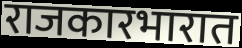
राजकारभारात